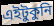
এইটুকুনি